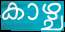
കാഴ്ച